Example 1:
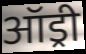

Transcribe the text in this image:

ऑड्री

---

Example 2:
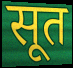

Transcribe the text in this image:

सूत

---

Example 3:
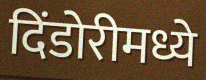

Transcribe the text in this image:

दिंडोरीमध्ये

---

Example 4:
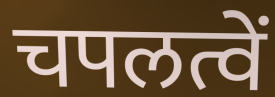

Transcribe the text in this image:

चपलत्वें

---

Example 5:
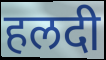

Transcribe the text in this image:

हलदी